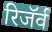
रिजॅर्व